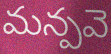
మన్పవె